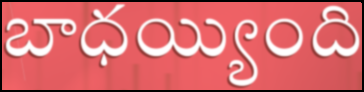
బాధయ్యింది